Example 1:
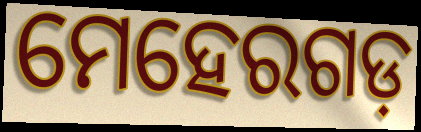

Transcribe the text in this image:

ମେହେରଗଡ଼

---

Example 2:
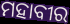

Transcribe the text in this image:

ମହାବୀର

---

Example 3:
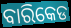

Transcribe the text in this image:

ବାରିକେଡ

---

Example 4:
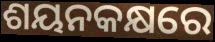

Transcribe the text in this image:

ଶୟନକକ୍ଷରେ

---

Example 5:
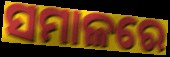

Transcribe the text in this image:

ସମାଳରେ